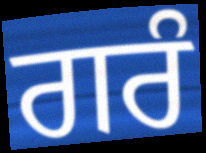
ਗਰੰ